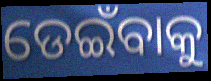
ଡେଇଁବାକୁ